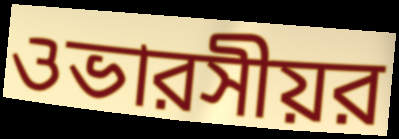
ওভারসীয়র